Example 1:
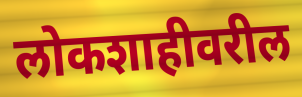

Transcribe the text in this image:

लोकशाहीवरील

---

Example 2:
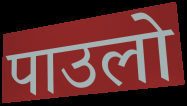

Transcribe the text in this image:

पाउलो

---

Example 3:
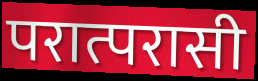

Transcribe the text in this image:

परात्परासी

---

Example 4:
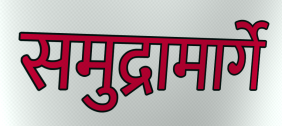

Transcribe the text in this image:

समुद्रामार्गे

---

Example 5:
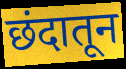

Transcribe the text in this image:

छंदातून